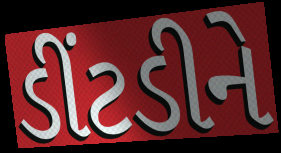
ડીંટડીને